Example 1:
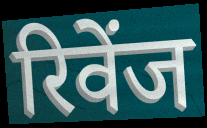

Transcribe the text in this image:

रिवेंज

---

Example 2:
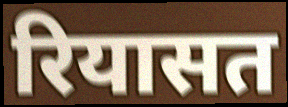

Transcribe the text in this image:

रियासत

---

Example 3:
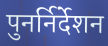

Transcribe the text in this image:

पुनर्निर्देशन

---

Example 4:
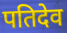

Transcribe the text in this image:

पतिदेव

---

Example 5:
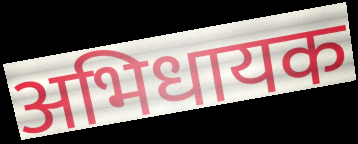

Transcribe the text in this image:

अभिधायक